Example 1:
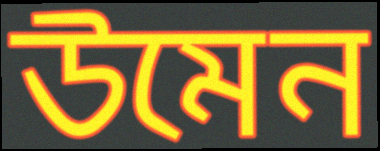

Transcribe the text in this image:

উমেন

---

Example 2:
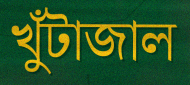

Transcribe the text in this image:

খুঁটাজাল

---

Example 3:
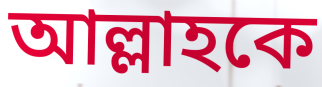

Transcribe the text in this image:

আল্লাহকে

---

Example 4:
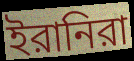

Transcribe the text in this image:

ইরানিরা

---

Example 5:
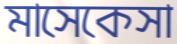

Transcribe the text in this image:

মাসেকেসা